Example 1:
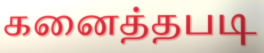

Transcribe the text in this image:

கனைத்தபடி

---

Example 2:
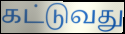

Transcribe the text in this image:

கட்டுவது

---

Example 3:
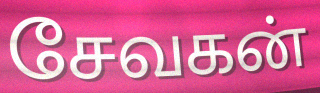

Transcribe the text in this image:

சேவகன்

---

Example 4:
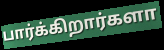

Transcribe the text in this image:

பார்க்கிறார்களா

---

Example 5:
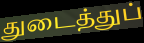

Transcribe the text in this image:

துடைத்துப்